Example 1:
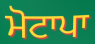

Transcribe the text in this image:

ਮੋਟਾਪਾ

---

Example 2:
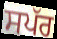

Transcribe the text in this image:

ਸਪੱਰ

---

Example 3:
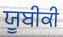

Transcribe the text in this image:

ਯੂਬੀਕੀ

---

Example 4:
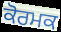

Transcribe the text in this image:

ਕੋਰਮਕ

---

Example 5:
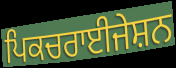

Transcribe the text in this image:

ਪਿਕਚਰਾਈਜੇਸ਼ਨ